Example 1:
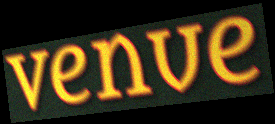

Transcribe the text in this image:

venue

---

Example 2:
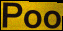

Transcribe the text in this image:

Poo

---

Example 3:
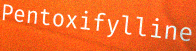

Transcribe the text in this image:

Pentoxifylline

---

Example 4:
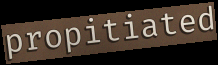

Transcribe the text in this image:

propitiated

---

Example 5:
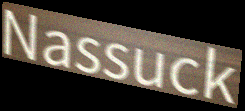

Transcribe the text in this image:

Nassuck